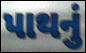
પાથનું